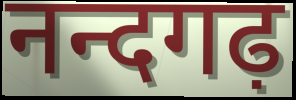
नन्दगढ़